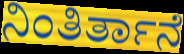
ನಿಂತಿರ್ತಾನೆ